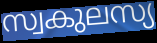
സ്വകുലസ്യ